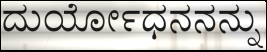
ದುರ್ಯೋಧನನನ್ನು